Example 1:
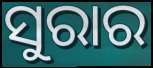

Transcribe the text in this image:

ସୁରାର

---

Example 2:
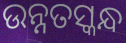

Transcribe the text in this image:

ଉନ୍ନତସ୍କନ୍ଧ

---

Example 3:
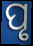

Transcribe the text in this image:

ପୃ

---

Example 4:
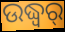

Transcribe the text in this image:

ଉଦ୍ଧ୍ୱର୍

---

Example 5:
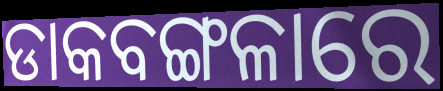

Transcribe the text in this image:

ଡାକବଙ୍ଗଳାରେ